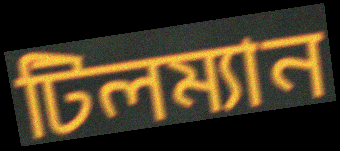
টিলম্যান